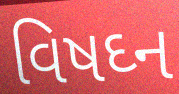
વિષઘ્ન